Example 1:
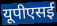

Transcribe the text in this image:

यूपीएसई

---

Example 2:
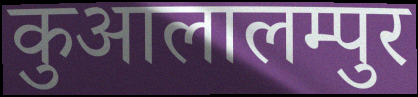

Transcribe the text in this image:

कुआलालम्पुर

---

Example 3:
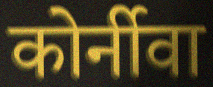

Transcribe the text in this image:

कोर्नीवा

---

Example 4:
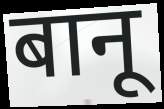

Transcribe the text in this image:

बानू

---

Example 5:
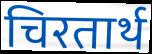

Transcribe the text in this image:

चिरतार्थ